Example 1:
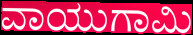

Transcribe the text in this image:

ವಾಯುಗಾಮಿ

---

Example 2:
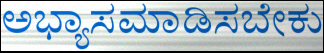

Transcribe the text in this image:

ಅಭ್ಯಾಸಮಾಡಿಸಬೇಕು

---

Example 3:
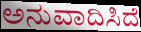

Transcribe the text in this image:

ಅನುವಾದಿಸಿದೆ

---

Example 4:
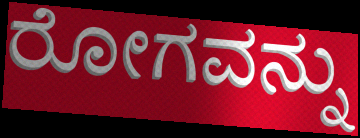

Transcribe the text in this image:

ರೋಗವನ್ನು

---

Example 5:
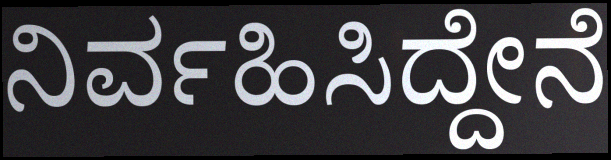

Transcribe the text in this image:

ನಿರ್ವಹಿಸಿದ್ದೇನೆ